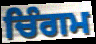
ਚਿੰਗਮ